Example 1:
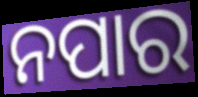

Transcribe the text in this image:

ନପାର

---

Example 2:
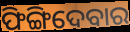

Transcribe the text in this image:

ଫିଙ୍ଗିଦେବାର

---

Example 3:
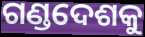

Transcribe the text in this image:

ଗଣ୍ଡଦେଶକୁ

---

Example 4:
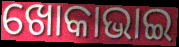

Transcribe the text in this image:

ଖୋକାଭାଇ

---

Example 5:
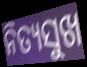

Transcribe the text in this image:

ନିତ୍ୟସୁଖ